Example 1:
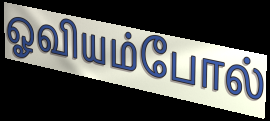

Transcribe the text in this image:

ஓவியம்போல்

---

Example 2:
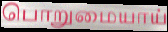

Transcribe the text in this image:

பொறுமையாய்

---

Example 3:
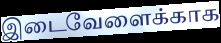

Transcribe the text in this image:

இடைவேளைக்காக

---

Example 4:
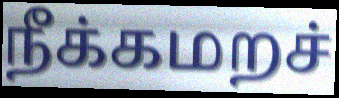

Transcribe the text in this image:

நீக்கமறச்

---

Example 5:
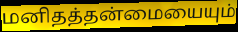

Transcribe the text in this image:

மனிதத்தன்மையையும்